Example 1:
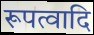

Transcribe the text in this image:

रूपत्वादि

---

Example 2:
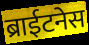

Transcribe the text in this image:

ब्राईटनेस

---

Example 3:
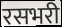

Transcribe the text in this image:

रसभरी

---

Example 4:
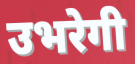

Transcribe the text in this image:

उभरेगी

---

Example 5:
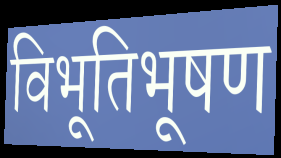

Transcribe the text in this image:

विभूतिभूषण